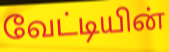
வேட்டியின்